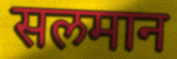
सलमान